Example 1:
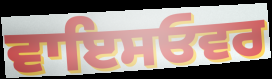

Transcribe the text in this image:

ਵਾਇਸਓਵਰ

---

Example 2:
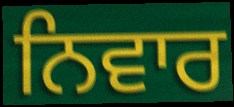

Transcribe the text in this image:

ਨਿਵਾਰ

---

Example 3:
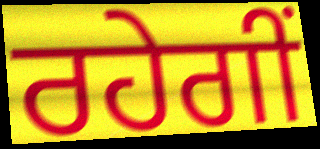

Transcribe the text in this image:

ਰਹੇਗੀਂ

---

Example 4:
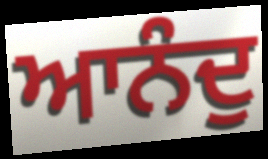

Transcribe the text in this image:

ਆਨੰਦੁ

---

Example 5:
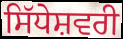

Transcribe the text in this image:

ਸਿੱਧੇਸ਼ਵਰੀ